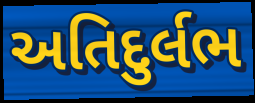
અતિદુર્લભ